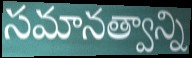
సమానత్వాన్ని